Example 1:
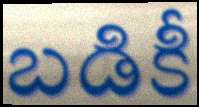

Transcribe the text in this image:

బడికీ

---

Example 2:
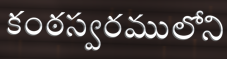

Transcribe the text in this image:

కంఠస్వరములోని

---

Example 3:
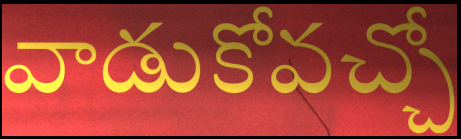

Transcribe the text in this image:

వాడుకోవచ్చో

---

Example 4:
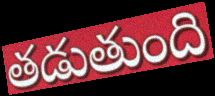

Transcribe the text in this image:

తడుతుంది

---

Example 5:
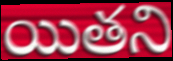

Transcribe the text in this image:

యితని